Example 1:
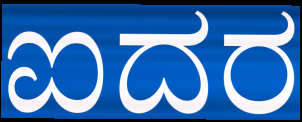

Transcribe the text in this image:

ಐದರ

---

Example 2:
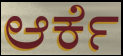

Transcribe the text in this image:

ಆರ್ಕೆ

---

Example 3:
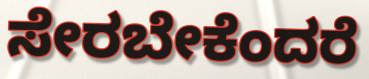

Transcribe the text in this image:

ಸೇರಬೇಕೆಂದರೆ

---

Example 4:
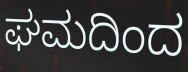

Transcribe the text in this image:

ಘಮದಿಂದ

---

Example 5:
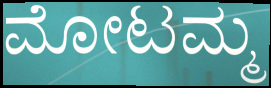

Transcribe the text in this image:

ಮೋಟಮ್ಮ